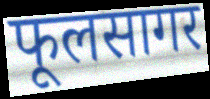
फूलसागर